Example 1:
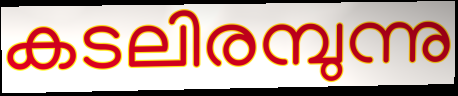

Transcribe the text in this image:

കടലിരമ്പുന്നു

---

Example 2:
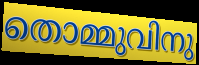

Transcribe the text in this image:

തൊമ്മുവിനു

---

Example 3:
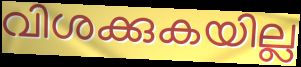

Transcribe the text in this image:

വിശക്കുകയില്ല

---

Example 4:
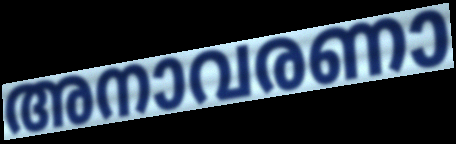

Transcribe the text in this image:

അനാവരണാ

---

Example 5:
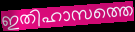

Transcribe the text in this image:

ഇതിഹാസത്തെ